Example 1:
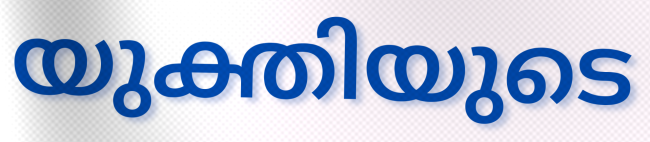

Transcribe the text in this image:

യുക്തിയുടെ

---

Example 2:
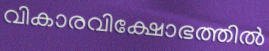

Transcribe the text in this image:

വികാരവിക്ഷോഭത്തിൽ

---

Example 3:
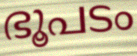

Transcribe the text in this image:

ഭൂപടം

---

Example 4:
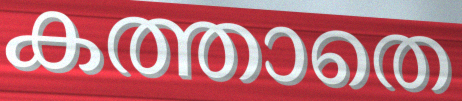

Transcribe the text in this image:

കത്താതെ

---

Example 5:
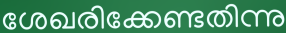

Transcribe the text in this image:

ശേഖരിക്കേണ്ടതിന്നു